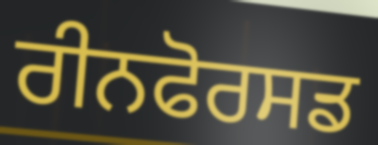
ਰੀਨਫੋਰਸਡ